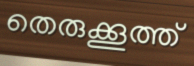
തെരുക്കൂത്ത്